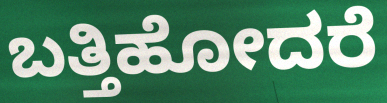
ಬತ್ತಿಹೋದರೆ